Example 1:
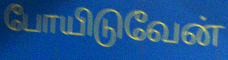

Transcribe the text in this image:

போயிடுவேன்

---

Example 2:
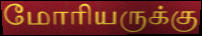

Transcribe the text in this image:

மோரியருக்கு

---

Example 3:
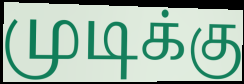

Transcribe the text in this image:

முடிக்கு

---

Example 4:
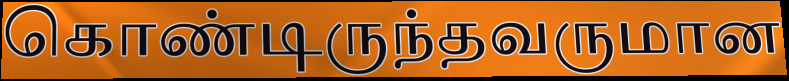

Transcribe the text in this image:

கொண்டிருந்தவருமான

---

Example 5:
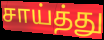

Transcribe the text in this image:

சாய்த்து